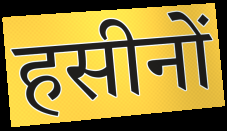
हसीनों